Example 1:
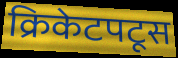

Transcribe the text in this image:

क्रिकेटपटूस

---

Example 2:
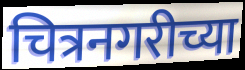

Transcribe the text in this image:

चित्रनगरीच्या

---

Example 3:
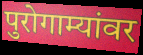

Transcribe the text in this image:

पुरोगाम्यांवर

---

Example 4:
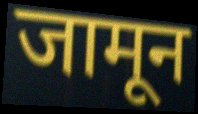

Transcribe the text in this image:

जामून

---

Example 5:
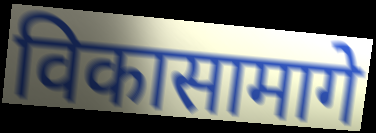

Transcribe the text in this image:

विकासामागे